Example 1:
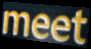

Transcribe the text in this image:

meet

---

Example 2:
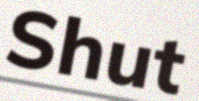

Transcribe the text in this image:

Shut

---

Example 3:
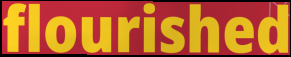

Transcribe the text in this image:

flourished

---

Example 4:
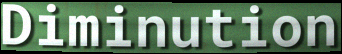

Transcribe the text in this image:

Diminution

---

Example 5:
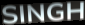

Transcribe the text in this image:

SINGH